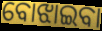
ବୋଝାଇବା